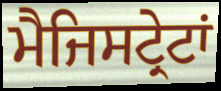
ਮੈਜਿਸਟ੍ਰੇਟਾਂ